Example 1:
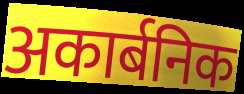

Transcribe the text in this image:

अकार्बनिक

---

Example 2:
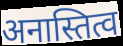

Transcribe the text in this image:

अनास्तित्व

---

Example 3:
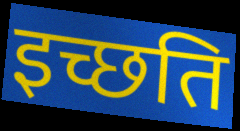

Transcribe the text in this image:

इच्छति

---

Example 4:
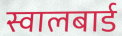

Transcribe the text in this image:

स्वालबार्ड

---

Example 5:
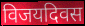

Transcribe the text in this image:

विजयदिवस